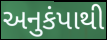
અનુકંપાથી